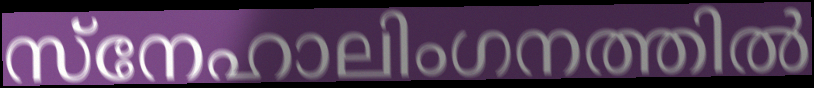
സ്നേഹാലിംഗനത്തിൽ